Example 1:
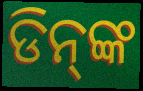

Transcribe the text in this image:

ଡିନ୍‍ଙ୍କ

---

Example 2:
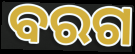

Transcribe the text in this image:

ବରଗ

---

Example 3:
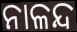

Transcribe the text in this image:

ନାଳନ୍ଦ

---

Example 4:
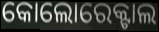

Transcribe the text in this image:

କୋଲୋରେକ୍ଟାଲ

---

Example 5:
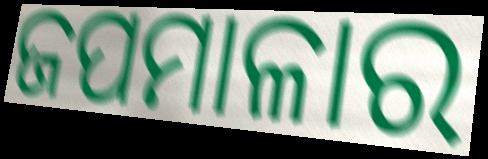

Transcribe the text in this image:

ଜପମାଳାର